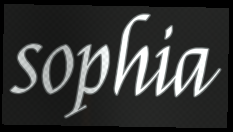
sophia